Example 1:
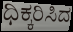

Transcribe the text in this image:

ಧಿಕ್ಕರಿಸಿದ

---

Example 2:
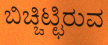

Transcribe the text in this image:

ಬಿಚ್ಚಿಟ್ಟಿರುವ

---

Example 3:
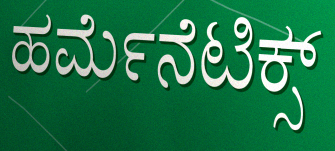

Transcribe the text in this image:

ಹರ್ಮೆನೆಟಿಕ್ಸ್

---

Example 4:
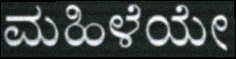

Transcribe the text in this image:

ಮಹಿಳೆಯೇ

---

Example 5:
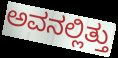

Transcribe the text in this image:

ಅವನಲ್ಲಿತ್ತು